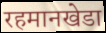
रहमानखेडा